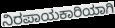
ನಿರಪಾಯಕಾರಿಯಾಗಿ